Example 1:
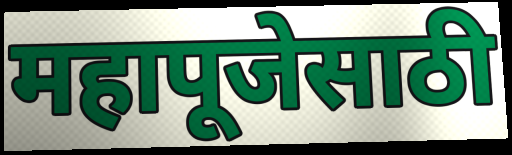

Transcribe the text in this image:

महापूजेसाठी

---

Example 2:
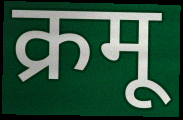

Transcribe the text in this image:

क्रमू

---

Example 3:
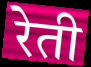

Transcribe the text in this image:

रेती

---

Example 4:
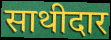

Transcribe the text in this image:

साथीदार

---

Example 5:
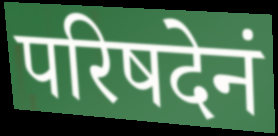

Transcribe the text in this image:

परिषदेनं